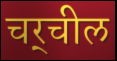
चर्चील